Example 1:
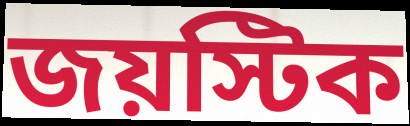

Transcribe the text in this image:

জয়স্টিক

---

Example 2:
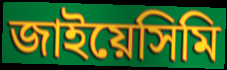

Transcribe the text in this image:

জাইয়েসিমি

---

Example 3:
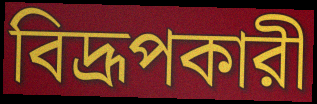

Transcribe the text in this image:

বিদ্রূপকারী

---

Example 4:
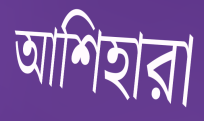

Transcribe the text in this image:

আশিহারা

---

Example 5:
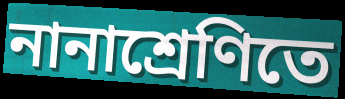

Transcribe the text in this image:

নানাশ্রেণিতে